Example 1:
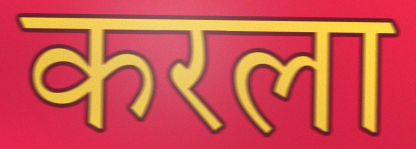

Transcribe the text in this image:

करला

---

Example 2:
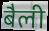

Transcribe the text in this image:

बैली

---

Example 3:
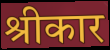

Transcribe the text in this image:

श्रीकार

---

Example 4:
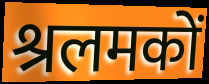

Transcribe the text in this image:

श्रलमकों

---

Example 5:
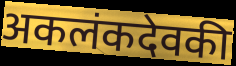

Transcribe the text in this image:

अकलंकदेवकी